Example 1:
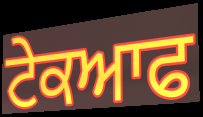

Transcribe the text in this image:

ਟੇਕਆਫ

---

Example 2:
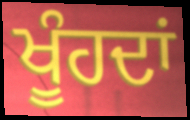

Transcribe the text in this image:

ਖੂੰਹਦਾਂ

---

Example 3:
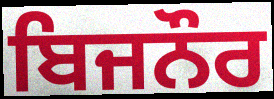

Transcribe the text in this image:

ਬਿਜਨੌਰ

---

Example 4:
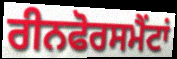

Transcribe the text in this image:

ਰੀਨਫੋਰਸਮੈਂਟਾਂ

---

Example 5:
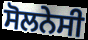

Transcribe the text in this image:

ਸੋਲਨੇਸੀ